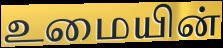
உமையின்